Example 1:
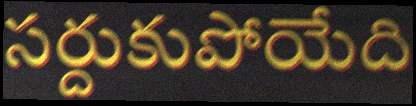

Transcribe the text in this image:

సర్దుకుపోయేది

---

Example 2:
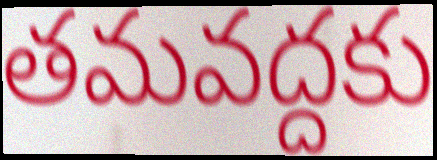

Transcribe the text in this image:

తమవద్దకు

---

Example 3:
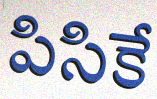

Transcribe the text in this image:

పిసికే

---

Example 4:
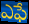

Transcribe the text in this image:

ఎఫే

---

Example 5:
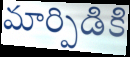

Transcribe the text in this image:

మార్పిడికి